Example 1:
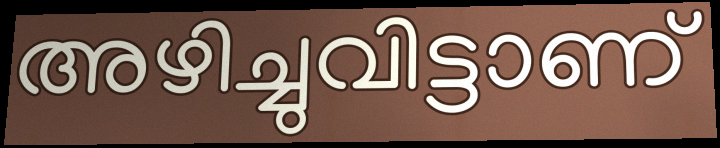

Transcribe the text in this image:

അഴിച്ചുവിട്ടാണ്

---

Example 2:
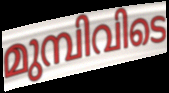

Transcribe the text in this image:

മുമ്പിവിടെ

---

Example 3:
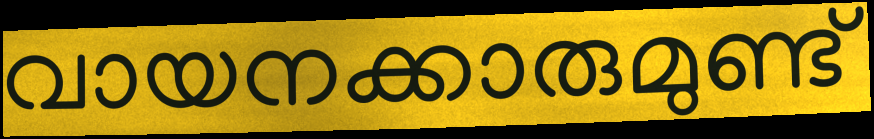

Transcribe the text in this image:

വായനക്കാരുമുണ്ട്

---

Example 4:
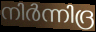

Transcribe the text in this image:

നിർന്നിദ്ര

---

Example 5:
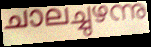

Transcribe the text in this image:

ചാലച്ചുഴന്നു